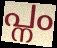
പ്നം